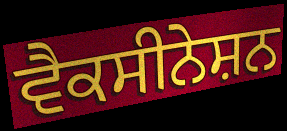
ਵੈਕਸੀਨੇਸ਼ਨ